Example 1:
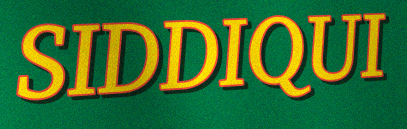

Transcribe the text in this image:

SIDDIQUI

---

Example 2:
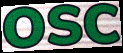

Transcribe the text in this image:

osc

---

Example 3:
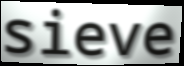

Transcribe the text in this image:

sieve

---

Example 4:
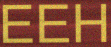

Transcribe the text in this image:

EEH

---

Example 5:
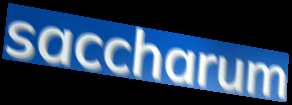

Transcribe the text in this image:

saccharum